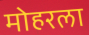
मोहरला